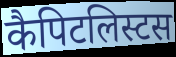
कैपिटलिस्टस